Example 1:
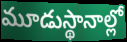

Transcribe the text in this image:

మూడుస్థానాల్లో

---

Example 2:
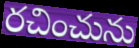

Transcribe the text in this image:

రచించును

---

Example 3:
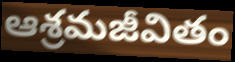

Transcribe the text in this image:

ఆశ్రమజీవితం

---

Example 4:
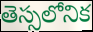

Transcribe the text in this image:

తెస్సలోనిక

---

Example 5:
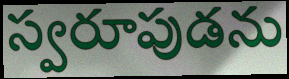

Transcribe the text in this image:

స్వరూపుడను